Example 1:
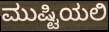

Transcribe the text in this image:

ಮುಷ್ಟಿಯಲಿ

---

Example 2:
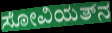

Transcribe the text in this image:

ಸೋವಿಯತ್‌ನ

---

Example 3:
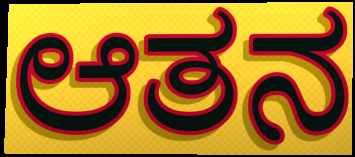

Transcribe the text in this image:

ಆತನ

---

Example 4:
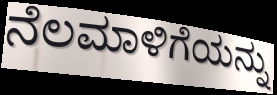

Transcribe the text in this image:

ನೆಲಮಾಳಿಗೆಯನ್ನು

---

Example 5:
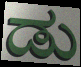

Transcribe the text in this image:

ಡು